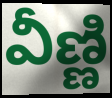
వీణ్ణి